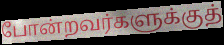
போன்றவர்களுக்குத்